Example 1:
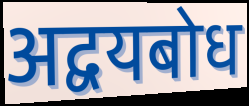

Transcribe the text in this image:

अद्वयबोध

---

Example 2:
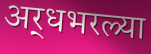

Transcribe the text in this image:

अर्धभरल्या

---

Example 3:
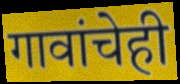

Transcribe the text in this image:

गावांचेही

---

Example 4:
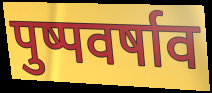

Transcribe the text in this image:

पुष्पवर्षाव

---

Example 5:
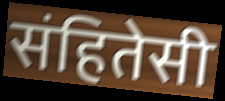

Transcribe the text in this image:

संहितेसी